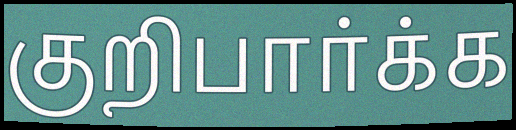
குறிபார்க்க